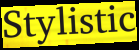
Stylistic